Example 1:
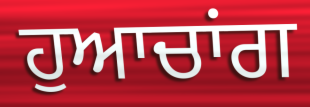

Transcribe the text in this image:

ਹੁਆਚਾਂਗ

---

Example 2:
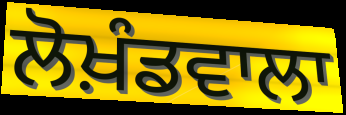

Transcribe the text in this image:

ਲੋਖ਼ੰਡਵਾਲਾ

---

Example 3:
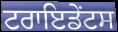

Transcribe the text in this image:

ਟਰਾਇਡੇਂਟਸ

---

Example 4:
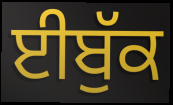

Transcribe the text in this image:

ਈਬੁੱਕ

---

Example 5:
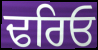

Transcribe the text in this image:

ਢਰਿਓ